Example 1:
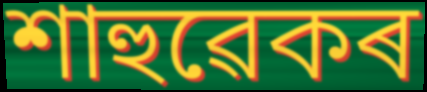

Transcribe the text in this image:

শাহুৱেকৰ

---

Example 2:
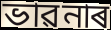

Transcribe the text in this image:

ভাৱনাৰ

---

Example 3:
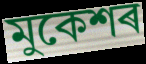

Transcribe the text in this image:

মুকেশৰ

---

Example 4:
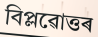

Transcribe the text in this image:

বিপ্লৱোত্তৰ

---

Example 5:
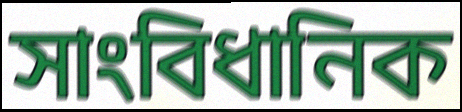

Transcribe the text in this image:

সাংবিধানিক